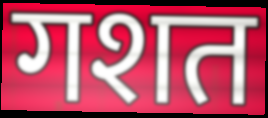
गशत